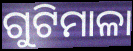
ଗୁଟିମାଳା